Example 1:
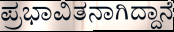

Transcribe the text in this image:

ಪ್ರಭಾವಿತನಾಗಿದ್ದಾನೆ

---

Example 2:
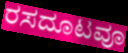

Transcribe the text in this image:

ರಸದೂಟವೂ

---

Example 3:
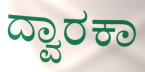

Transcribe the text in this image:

ದ್ವಾರಕಾ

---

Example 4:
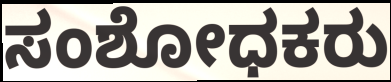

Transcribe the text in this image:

ಸಂಶೋಧಕರು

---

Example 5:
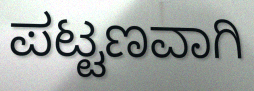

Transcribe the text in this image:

ಪಟ್ಟಣವಾಗಿ